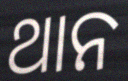
ଥାନ